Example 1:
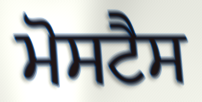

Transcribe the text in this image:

ਮੋਸਟੈਸ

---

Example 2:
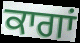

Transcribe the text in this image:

ਕਾਗਾਂ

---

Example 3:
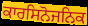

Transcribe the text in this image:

ਕਾਰਸਿਨੋਜਨਿਕ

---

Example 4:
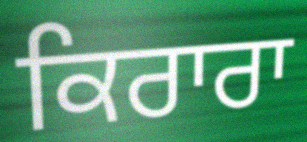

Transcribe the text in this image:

ਕਿਰਾਰਾ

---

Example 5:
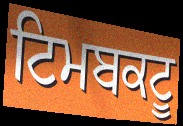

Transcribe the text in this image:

ਟਿਮਬਕਟੂ